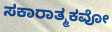
ಸಕಾರಾತ್ಮಕವೋ